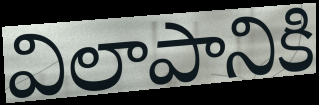
విలాపానికి